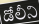
డోలీని